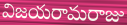
విజయరామరాజు